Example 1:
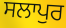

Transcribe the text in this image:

ਸਲਾਪੁਰ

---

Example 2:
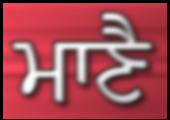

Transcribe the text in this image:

ਮਾਣੈ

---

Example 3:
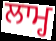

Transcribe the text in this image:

ਲਾਮ੍ਹ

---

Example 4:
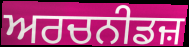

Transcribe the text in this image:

ਅਰਚਨੀਡਜ਼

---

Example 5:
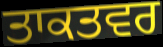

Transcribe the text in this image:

ਤਾਕਤਵਰ